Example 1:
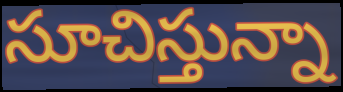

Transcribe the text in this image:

సూచిస్తున్నా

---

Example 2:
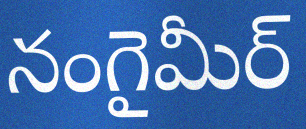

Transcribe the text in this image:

నంగైమీర్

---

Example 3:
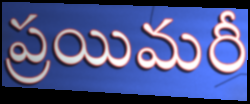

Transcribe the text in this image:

ప్రయిమరీ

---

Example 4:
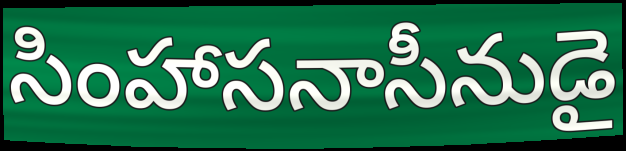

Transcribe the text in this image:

సింహాసనాసీనుడై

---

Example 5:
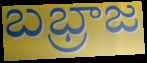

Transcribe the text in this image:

బభ్రాజ